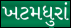
ખટમધુરાં